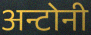
अन्टोनी